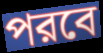
পরবে